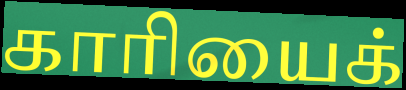
காரியைக்